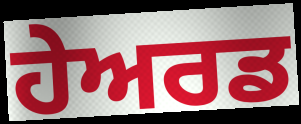
ਹੇਅਰਡ